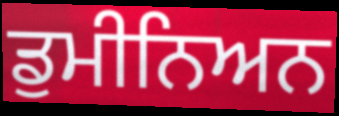
ਡੁਮੀਨਿਅਨ